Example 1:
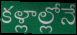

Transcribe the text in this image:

కళ్లాల్లోనే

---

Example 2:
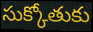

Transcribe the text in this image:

సుక్కోతుకు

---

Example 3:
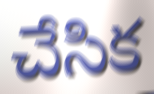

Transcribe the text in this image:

చేసిక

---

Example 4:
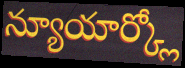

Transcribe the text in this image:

న్యూయార్క్లో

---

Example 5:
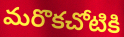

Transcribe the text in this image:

మరొకచోటికి